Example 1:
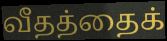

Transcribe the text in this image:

வீதத்தைக்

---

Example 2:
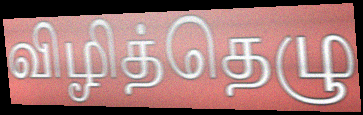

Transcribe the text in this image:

விழித்தெழு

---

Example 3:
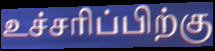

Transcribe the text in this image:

உச்சரிப்பிற்கு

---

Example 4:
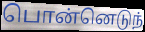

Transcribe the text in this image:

பொன்னெடுந்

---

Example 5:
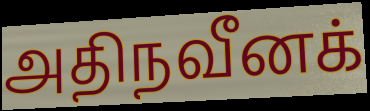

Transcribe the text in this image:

அதிநவீனக்